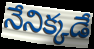
నేనిక్కడే